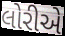
લોરીએ